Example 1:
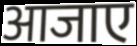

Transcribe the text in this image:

आजाए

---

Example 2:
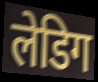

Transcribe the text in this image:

लेडिग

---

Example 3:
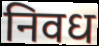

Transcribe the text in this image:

निवध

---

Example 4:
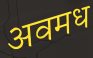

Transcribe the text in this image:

अवमध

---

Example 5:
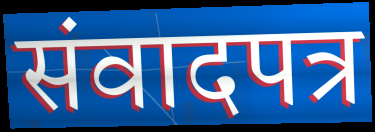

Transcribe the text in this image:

संवादपत्र